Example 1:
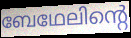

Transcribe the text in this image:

ബേഥേലിന്റെ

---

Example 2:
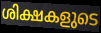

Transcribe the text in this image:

ശിക്ഷകളുടെ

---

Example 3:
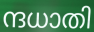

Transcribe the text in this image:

ന്ദധാതി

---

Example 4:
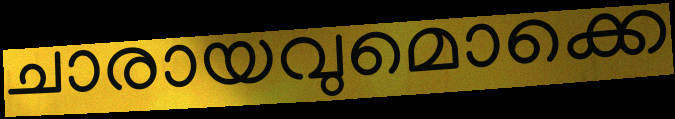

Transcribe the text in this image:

ചാരായവുമൊക്കെ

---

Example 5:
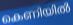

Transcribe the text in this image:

കെണിയിൽ